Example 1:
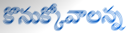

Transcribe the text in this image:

కొనుక్కోవాలన్న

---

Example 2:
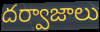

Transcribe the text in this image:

దర్వాజాలు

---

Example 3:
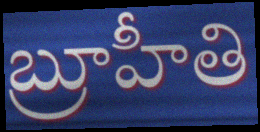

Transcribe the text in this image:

బ్రూహీతి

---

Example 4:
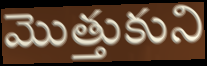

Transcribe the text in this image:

మొత్తుకుని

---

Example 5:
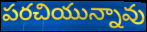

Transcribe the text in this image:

పరచియున్నావు